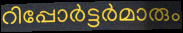
റിപ്പോർട്ടർമാരും